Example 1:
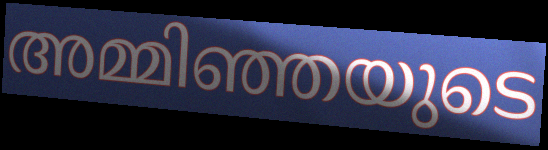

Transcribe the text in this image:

അമ്മിഞ്ഞയുടെ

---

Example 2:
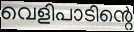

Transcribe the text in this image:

വെളിപാടിന്റെ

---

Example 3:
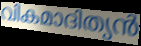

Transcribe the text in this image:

വികമാദിത്യൻ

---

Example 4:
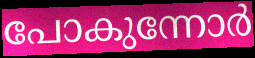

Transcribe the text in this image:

പോകുന്നോർ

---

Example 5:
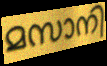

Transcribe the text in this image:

മസാനി